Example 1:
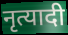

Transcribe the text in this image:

नृत्यादी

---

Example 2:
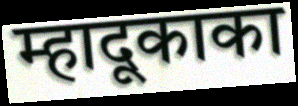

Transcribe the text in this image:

म्हादूकाका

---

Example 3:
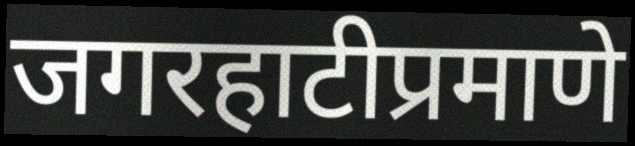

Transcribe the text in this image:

जगरहाटीप्रमाणे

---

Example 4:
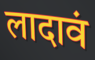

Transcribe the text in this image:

लादावं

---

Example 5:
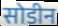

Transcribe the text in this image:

सोडीन